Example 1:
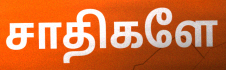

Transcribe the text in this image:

சாதிகளே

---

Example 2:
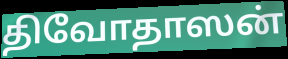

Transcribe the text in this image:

திவோதாஸன்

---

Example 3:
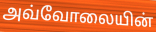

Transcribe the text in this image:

அவ்வோலையின்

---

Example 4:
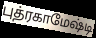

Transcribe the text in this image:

புத்ரகாமேஷ்டி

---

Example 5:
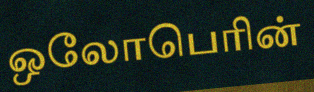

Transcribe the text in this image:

ஒலோபெரின்